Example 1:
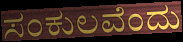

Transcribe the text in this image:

ಸಂಕುಲವೆಂದು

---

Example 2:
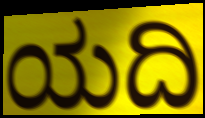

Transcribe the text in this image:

ಯದಿ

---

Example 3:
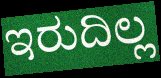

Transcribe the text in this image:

ಇರುದಿಲ್ಲ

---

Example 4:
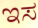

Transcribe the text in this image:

ಇಸ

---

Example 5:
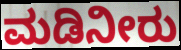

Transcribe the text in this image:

ಮಡಿನೀರು